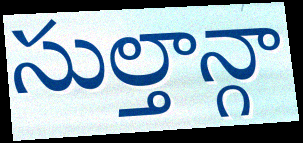
సుల్తాన్గా